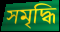
সমৃদ্ধি